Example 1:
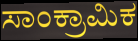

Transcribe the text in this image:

ಸಾಂಕ್ರಾಮಿಕ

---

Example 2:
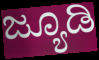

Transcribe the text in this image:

ಜ್ಯೂಡಿ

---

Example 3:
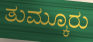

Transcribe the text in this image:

ತುಮ್ಕೂರು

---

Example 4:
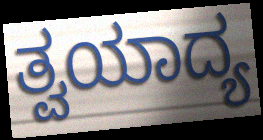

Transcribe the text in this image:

ತ್ವಯಾದ್ಯ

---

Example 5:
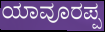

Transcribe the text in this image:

ಯಾವೂರಪ್ಪ